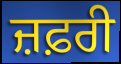
ਜ਼ਫ਼ਰੀ